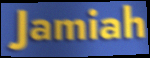
Jamiah